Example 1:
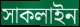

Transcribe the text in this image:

সাকলাইন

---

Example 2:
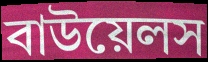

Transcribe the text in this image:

বাউয়েলস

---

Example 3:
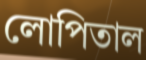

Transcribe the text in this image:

লোপিতাল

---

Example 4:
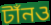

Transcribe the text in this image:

টাঁনও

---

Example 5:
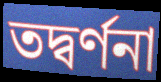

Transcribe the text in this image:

তদ্বর্ণনা